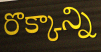
రొక్కాన్ని